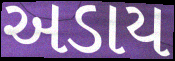
અડાય